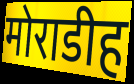
मोराडीह